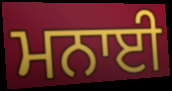
ਮਨਾਈ